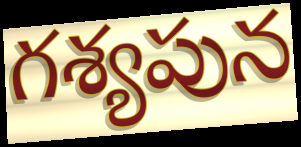
గశ్యపున